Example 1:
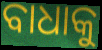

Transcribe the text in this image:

ବାଧାକୁ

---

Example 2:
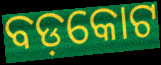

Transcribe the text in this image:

ବଡ଼କୋଟ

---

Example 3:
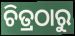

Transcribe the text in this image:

ଚିତ୍ରଠାରୁ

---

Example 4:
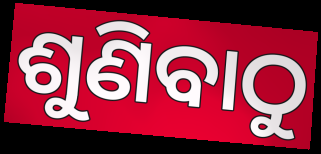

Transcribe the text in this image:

ଶୁଣିବାଠୁ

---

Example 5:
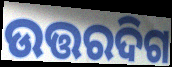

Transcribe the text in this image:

ଉତ୍ତରଦିଗ